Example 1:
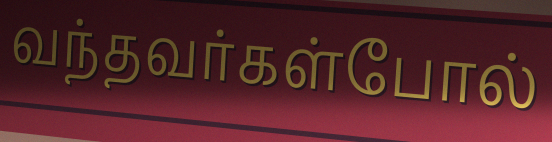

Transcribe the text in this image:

வந்தவர்கள்போல்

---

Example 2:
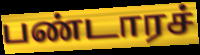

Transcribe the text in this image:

பண்டாரச்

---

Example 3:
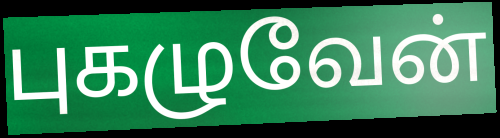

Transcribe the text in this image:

புகழுவேன்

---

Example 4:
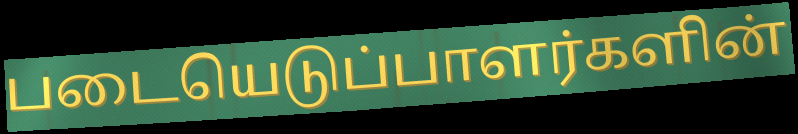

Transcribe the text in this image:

படையெடுப்பாளர்களின்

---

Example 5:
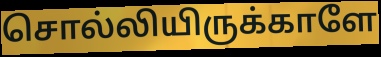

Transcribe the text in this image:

சொல்லியிருக்காளே